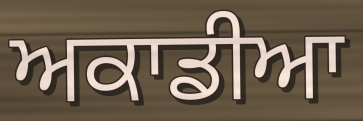
ਅਕਾਡੀਆ